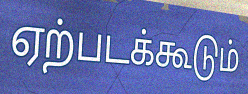
ஏற்படக்கூடும்